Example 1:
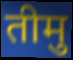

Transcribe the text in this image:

तीमु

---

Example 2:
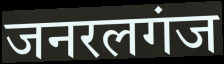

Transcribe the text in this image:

जनरलगंज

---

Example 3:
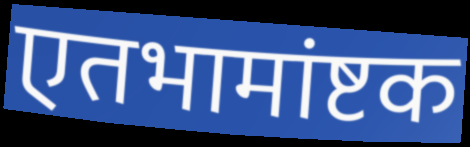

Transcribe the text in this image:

एतभामांष्टक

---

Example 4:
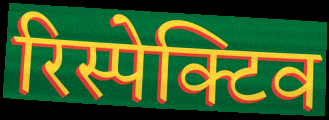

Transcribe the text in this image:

रिस्पेक्टिव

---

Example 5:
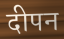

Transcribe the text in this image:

दीपन